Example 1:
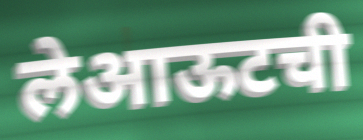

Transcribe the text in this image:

लेआऊटची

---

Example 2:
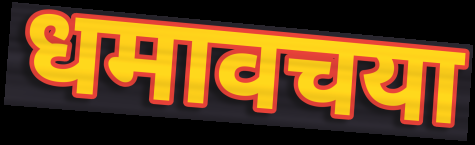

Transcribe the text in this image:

धमावचया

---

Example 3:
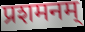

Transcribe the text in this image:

प्रशमनम्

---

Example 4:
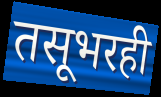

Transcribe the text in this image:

तसूभरही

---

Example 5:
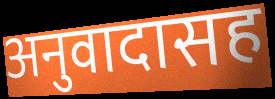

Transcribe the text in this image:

अनुवादासह